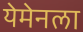
येमेनला